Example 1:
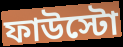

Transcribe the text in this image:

ফাউস্টো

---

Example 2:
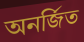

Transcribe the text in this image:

অনর্জিত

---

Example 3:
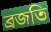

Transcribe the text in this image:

ব্রজতি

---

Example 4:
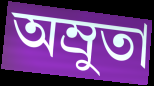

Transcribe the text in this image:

অম্রুতা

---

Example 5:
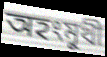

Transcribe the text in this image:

অহংমুখী